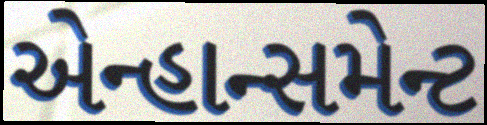
એન્હાન્સમેન્ટ